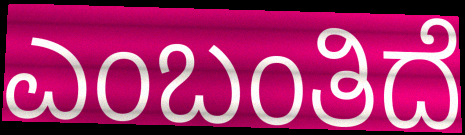
ಎಂಬಂತಿದೆ